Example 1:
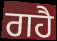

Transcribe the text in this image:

ਗਹੈ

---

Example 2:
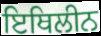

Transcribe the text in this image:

ਇਥਿਲੀਨ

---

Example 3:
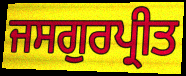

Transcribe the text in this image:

ਜਸਗੁਰਪ੍ਰੀਤ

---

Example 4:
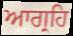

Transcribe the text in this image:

ਆਗ੍ਰਹਿ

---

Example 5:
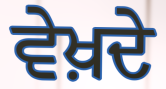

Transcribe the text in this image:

ਵੇਖ਼ਦੇ